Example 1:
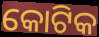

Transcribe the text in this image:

କୋଟିକ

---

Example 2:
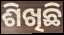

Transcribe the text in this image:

ଶିଖିଛି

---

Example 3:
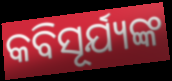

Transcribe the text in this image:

କବିସୂର୍ଯ୍ୟଙ୍କ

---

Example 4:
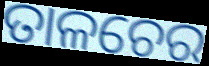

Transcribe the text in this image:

ତାଳଚେର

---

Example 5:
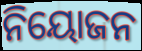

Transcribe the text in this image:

ନିୟୋଜନ